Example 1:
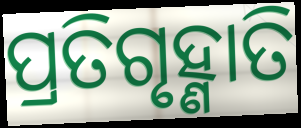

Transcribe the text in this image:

ପ୍ରତିଗୃହ୍ଣାତି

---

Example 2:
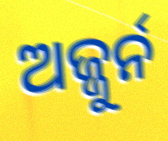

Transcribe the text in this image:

ଅଜ୍ଜୁର୍ନ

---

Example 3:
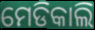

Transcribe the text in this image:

ମେଡିକାଲି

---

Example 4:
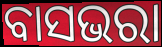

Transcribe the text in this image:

ବାସଭରା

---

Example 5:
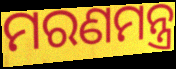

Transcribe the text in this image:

ମରଣମନ୍ତ୍ର